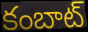
కంబాట్